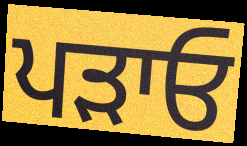
ਪੜਾਓ